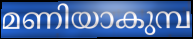
മണിയാകുമ്പ